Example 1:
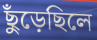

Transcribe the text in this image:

ছুঁড়েছিলে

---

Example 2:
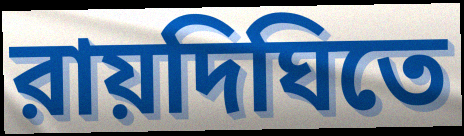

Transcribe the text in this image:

রায়দিঘিতে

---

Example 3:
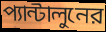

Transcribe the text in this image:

প্যান্টালুনের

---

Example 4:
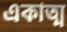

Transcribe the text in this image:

একাত্ম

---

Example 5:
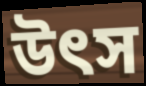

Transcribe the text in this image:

উৎস